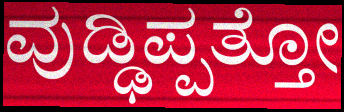
ವುಡ್ಢಿಪ್ಪತ್ತೋ